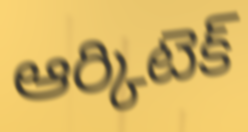
ఆర్కిటెక్